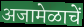
अजामेळाचें